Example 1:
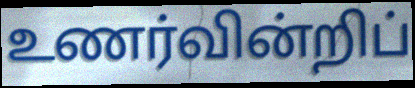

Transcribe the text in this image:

உணர்வின்றிப்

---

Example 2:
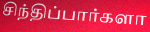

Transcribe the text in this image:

சிந்திப்பார்களா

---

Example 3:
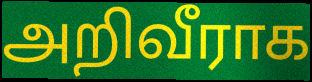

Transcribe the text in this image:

அறிவீராக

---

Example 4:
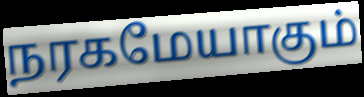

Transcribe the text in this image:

நரகமேயாகும்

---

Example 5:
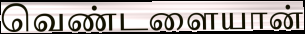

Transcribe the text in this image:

வெண்டளையான்